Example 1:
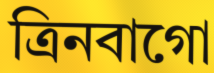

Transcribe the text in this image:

ত্রিনবাগো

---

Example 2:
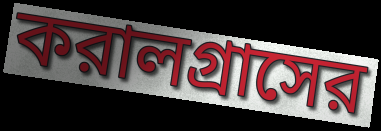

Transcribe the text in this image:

করালগ্রাসের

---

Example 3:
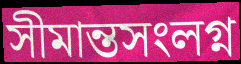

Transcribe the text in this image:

সীমান্তসংলগ্ন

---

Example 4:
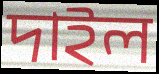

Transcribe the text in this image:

দাইল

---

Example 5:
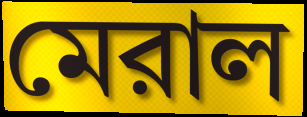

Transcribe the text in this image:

মেরাল